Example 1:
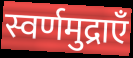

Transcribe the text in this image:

स्वर्णमुद्राएँ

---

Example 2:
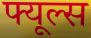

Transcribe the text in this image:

फ्यूल्स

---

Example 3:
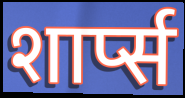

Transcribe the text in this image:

शार्प्स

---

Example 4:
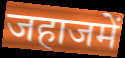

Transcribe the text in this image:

जहाजमें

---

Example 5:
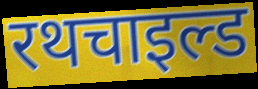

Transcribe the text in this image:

रथचाइल्ड